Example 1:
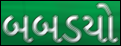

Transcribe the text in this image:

બબડયો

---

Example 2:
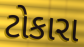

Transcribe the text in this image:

ટોકારા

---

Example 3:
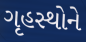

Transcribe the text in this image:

ગૃહસ્થોને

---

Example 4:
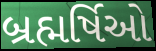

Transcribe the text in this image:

બ્રહ્મર્ષિઓ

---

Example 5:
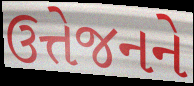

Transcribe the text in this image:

ઉત્તેજનને